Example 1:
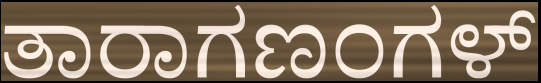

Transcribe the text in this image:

ತಾರಾಗಣಂಗಳ್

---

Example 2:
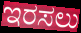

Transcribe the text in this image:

ಇರಸಲು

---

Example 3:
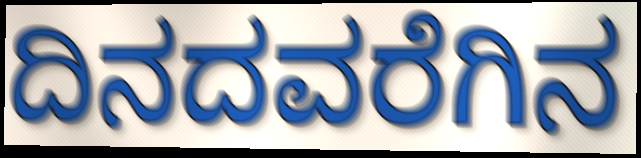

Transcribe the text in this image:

ದಿನದವರೆಗಿನ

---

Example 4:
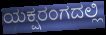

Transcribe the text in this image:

ಯಕ್ಷರಂಗದಲ್ಲಿ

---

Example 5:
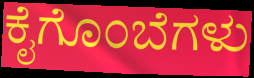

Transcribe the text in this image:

ಕೈಗೊಂಬೆಗಳು